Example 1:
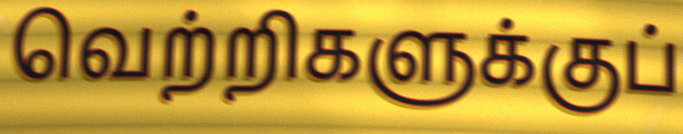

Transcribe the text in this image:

வெற்றிகளுக்குப்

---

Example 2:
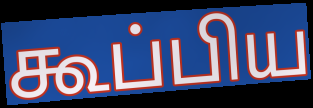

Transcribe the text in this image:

கூப்பிய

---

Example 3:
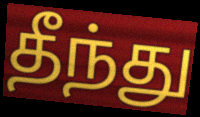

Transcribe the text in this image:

தீந்து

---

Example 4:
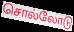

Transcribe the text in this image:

சொல்லோடு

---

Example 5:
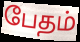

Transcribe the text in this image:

பேதம்